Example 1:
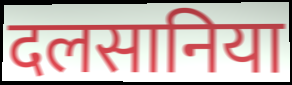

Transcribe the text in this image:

दलसानिया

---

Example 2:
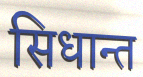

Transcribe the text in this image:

सिधान्त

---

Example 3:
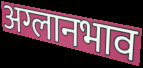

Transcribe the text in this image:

अग्लानभाव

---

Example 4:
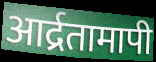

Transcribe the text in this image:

आर्द्रतामापी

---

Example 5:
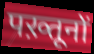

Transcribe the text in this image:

पख़्तूनों